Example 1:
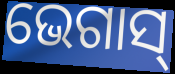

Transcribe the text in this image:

ଭେଗାସ୍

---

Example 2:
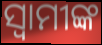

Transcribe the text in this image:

ସ୍ୱାମୀଙ୍କ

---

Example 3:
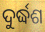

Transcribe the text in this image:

ଦୁର୍ଦ୍ଧଶ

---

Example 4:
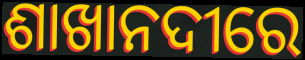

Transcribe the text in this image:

ଶାଖାନଦୀରେ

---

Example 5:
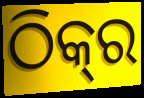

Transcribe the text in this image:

ଠିକ୍‍ର